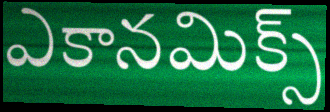
ఎకానమిక్స్